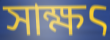
সাক্ষৎ